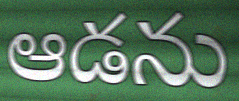
ఆడను